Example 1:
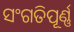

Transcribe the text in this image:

ସଂଗତିପୂର୍ଣ୍ଣ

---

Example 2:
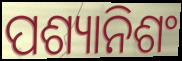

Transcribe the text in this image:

ପଶ୍ୟାନିଶଂ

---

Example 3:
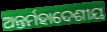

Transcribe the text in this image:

ଅନ୍ତର୍ମହାଦେଶୀୟ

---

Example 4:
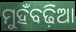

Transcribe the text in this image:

ମୁହଁବଢ଼ିଆ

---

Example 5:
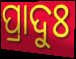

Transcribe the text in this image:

ପ୍ରାଦୁଃ